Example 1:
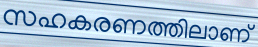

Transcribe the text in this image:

സഹകരണത്തിലാണ്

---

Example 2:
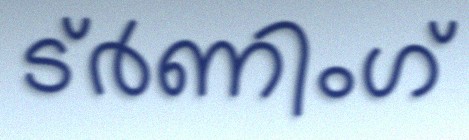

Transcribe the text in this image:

ട്ർണിംഗ്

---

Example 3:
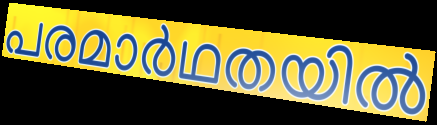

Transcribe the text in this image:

പരമാർഥതയിൽ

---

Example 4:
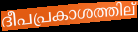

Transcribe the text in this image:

ദീപപ്രകാശത്തില്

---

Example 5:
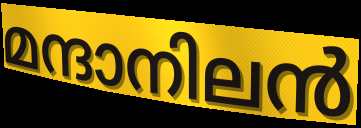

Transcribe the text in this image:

മന്ദാനിലൻ